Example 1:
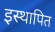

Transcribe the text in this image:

इस्थापित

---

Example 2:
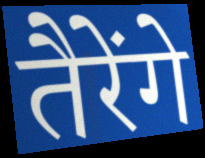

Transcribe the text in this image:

तैरेंगे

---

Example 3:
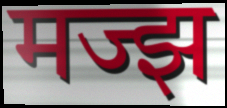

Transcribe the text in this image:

मज्झ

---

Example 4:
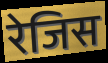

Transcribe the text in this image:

रेजिस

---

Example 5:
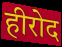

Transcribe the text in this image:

हीरोद